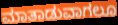
ಮಾತಾಡುವಾಗಲೂ